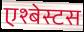
एश्बेस्टस